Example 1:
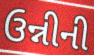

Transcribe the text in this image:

ઉન્નીની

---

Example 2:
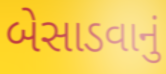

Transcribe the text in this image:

બેસાડવાનું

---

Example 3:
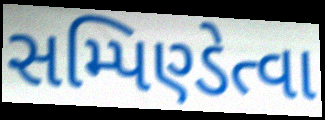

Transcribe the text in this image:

સમ્પિણ્ડેત્વા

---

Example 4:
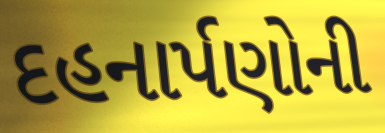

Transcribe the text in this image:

દહનાર્પણોની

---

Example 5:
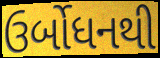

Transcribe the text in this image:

ઉર્બોધનથી